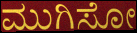
ಮುಗಿಸೋ